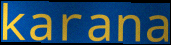
karana